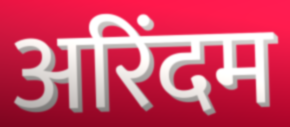
अरिंदम